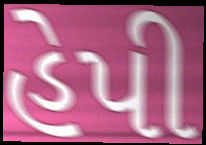
હેપી